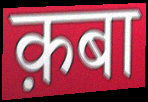
क़बा